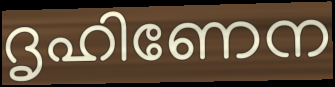
ദൃഹിണേന